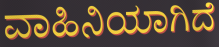
ವಾಹಿನಿಯಾಗಿದೆ